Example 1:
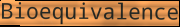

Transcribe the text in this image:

Bioequivalence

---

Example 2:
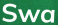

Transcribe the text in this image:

Swa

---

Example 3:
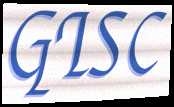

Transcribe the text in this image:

GISC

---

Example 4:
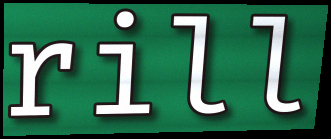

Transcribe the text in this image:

rill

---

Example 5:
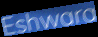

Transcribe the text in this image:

Eshwara